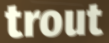
trout